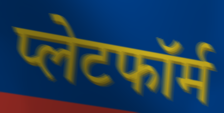
प्लेटफॉर्म